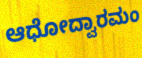
ಆಧೋದ್ವಾರಮಂ